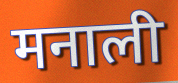
मनाली